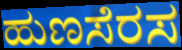
ಹುಣಸೆರಸ